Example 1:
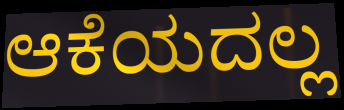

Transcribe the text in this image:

ಆಕೆಯದಲ್ಲ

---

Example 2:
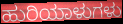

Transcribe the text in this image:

ಹುರಿಯಾಳುಗಳು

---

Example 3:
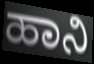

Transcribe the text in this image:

ಹಾನಿ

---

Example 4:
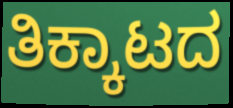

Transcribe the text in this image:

ತಿಕ್ಕಾಟದ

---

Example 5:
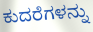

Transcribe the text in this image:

ಕುದರೆಗಳನ್ನು